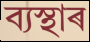
ব্যস্থাৰ